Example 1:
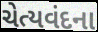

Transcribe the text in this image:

ચેત્યવંદના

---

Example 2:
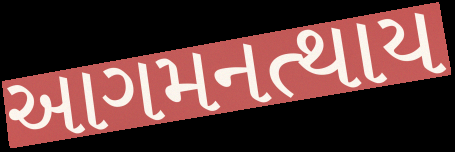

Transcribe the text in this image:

આગમનત્થાય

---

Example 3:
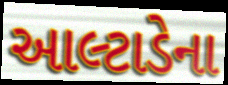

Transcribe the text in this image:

આલ્ટાડેના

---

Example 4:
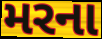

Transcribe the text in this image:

મરના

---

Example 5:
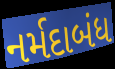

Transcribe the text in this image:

નર્મદાબંધ